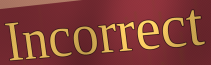
Incorrect